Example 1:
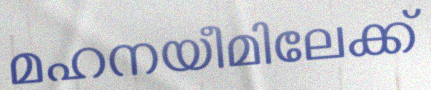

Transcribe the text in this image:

മഹനയീമിലേക്ക്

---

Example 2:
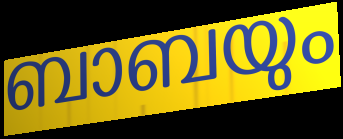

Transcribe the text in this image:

ബാബയും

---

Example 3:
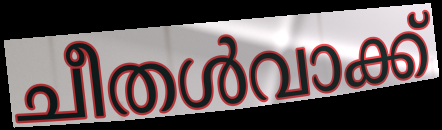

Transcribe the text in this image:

ചീതൾവാക്ക്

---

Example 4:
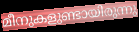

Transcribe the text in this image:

മീനുകളുണ്ടായിരുന്നു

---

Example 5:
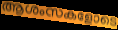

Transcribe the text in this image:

ആശംസകളോടെ